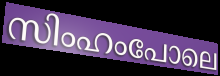
സിംഹംപോലെ